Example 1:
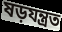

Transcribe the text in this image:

ষড়যন্ত্ৰত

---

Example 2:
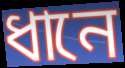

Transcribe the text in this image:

ধানে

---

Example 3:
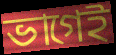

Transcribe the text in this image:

ভাগেই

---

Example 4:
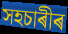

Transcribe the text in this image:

সহচাৰীৰ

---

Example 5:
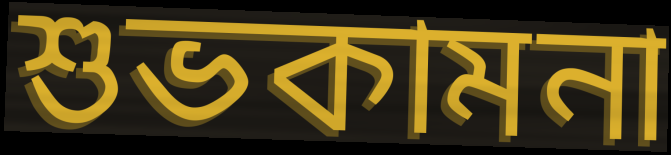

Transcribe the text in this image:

শুভকামনা